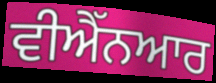
ਵੀਐੱਨਆਰ